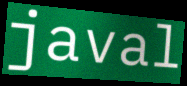
javal